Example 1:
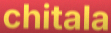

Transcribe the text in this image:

chitala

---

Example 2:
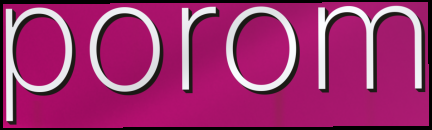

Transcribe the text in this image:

porom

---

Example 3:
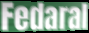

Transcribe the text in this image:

Fedaral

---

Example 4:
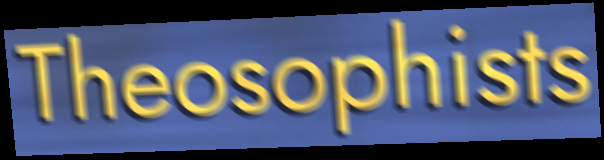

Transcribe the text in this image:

Theosophists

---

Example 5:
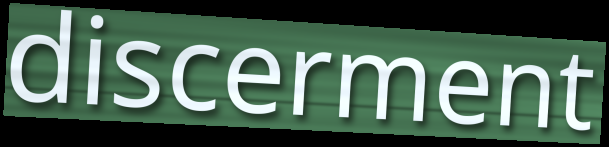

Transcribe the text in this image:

discerment